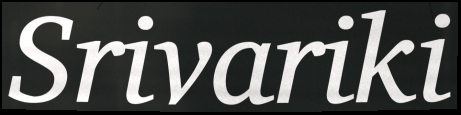
Srivariki